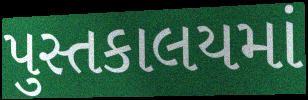
પુસ્તકાલયમાં